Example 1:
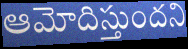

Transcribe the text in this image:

ఆమోదిస్తుందని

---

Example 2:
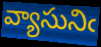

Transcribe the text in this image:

వ్యాసునిఁ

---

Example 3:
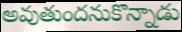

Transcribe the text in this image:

అవుతుందనుకొన్నాడు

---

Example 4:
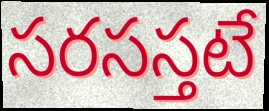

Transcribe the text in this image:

సరసస్తటే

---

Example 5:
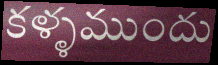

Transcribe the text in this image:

కళ్ళముందు